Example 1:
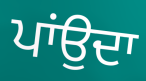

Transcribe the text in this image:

ਪਾਂਉਦਾ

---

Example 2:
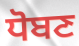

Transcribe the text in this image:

ਧੋਬਣ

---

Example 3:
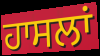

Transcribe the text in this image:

ਹਾਸਲਾਂ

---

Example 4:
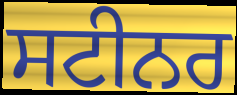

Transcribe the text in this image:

ਸਟੀਨਰ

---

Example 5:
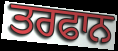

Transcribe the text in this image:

ਤਰਫਾਨ